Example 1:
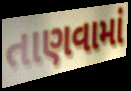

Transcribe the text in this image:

તાણવામાં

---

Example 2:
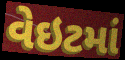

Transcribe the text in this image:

વેઇટમાં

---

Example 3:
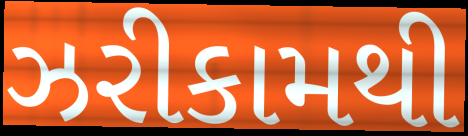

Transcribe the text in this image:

ઝરીકામથી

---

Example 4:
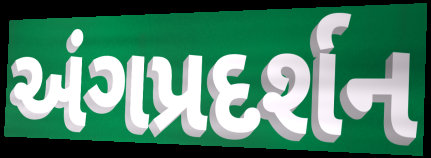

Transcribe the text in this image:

અંગપ્રદર્શન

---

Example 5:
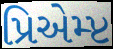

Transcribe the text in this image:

પ્રિએમ્પ્ટ